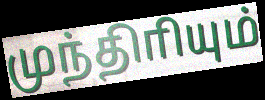
முந்திரியும்